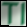
Tl